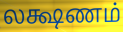
லக்ஷணம்